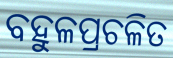
ବହୁଳପ୍ରଚଳିତ